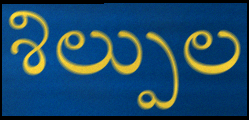
శిల్పుల